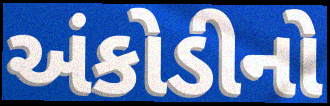
અંકોડીનો